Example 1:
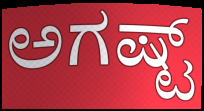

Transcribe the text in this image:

ಅಗಷ್ಟ್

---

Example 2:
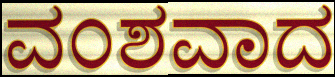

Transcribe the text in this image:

ವಂಶವಾದ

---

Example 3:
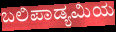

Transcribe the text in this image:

ಬಲಿಪಾಡ್ಯಮಿಯ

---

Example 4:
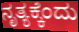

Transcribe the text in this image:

ನೃತ್ಯಕ್ಕೆಂದು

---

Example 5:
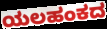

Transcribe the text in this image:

ಯಲಹಂಕದ